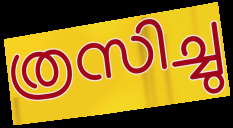
ത്രസിച്ചു